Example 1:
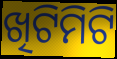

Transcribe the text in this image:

ଖିଟିମିଟି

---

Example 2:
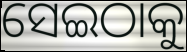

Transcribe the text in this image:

ସେଇଠାକୁ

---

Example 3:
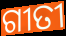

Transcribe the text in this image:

ଗୀତୀ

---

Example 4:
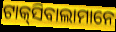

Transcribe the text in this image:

ଟାକ୍‌ସିବାଲାମାନେ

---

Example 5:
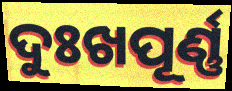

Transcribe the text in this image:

ଦୁଃଖପୂର୍ଣ୍ଣ